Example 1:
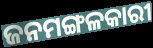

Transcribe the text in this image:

ଜନମଙ୍ଗଳକାରୀ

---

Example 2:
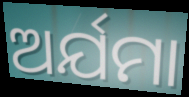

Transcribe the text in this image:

ଅର୍ଯମା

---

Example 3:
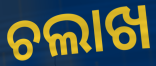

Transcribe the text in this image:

ଚଲାଖ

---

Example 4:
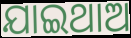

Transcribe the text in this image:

ଯାଇଥାଅ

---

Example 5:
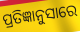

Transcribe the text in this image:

ପ୍ରତିଜ୍ଞାନୁସାରେ